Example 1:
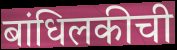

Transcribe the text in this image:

बांधिलकीची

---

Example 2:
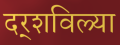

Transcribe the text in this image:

दर्शविल्या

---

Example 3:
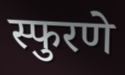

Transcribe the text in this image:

स्फुरणे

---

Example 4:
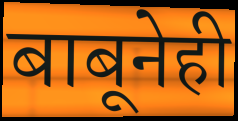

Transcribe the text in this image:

बाबूनेही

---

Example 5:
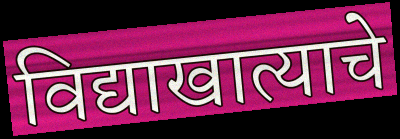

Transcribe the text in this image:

विद्याखात्याचे